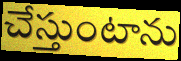
చేస్తుంటాను